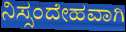
ನಿಸ್ಸಂದೇಹವಾಗಿ